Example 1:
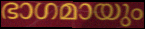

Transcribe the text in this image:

ഭാഗമായും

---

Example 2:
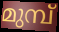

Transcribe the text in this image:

മുമ്പ്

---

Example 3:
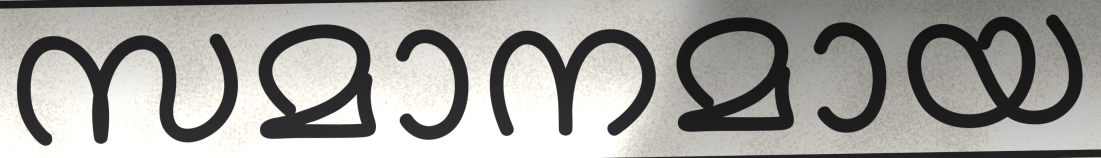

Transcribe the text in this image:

സമാനമായ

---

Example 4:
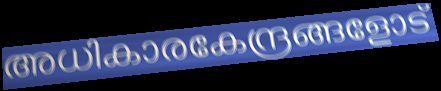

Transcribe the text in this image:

അധികാരകേന്ദ്രങ്ങളോട്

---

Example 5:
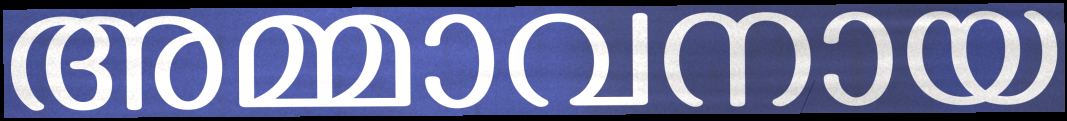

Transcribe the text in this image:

അമ്മാവനായ